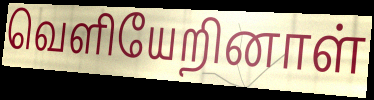
வெளியேறினாள்